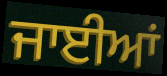
ਜਾਈਆਂ